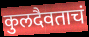
कुलदैवताचं